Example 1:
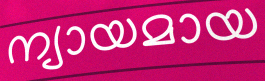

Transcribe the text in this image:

ന്യായമായ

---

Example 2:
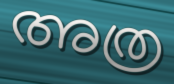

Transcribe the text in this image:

അത്ര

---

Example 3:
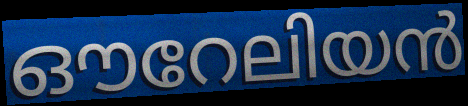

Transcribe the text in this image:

ഔറേലിയൻ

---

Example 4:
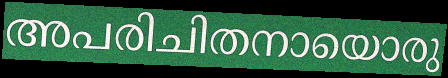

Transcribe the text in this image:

അപരിചിതനായൊരു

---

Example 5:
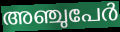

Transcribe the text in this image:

അഞ്ചുപേർ